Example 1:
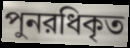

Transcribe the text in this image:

পুনরধিকৃত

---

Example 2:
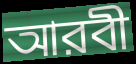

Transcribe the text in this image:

আরবী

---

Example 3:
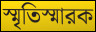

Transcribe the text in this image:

স্মৃতিস্মারক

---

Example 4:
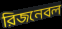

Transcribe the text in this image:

রিজনেবল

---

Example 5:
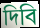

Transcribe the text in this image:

দিবি